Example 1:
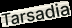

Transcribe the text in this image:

Tarsadia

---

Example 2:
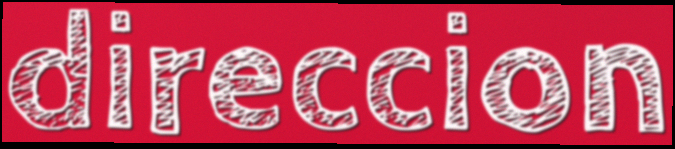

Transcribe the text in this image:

direccion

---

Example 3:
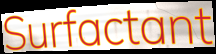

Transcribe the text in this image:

Surfactant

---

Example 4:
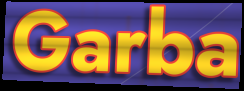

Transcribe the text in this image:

Garba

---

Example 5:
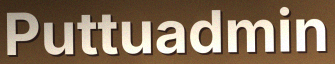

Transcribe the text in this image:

Puttuadmin